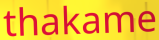
thakame